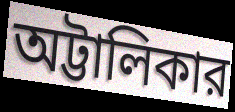
অট্টালিকার